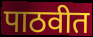
पाठवीत